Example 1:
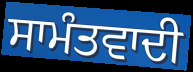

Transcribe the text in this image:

ਸਾਮੰਤਵਾਦੀ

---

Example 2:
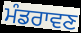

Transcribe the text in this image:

ਮੰਡਰਾਵਣ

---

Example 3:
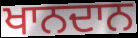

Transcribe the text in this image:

ਖਾਨਦਾਨ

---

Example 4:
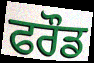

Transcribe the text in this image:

ਫਰੌਡ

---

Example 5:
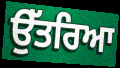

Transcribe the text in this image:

ਉੱਤਰਿਆ